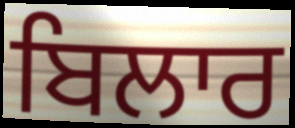
ਬਿਲਾਰ